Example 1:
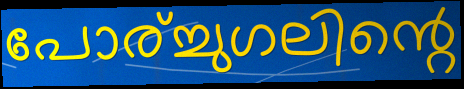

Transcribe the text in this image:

പോര്ച്ചുഗലിന്റെ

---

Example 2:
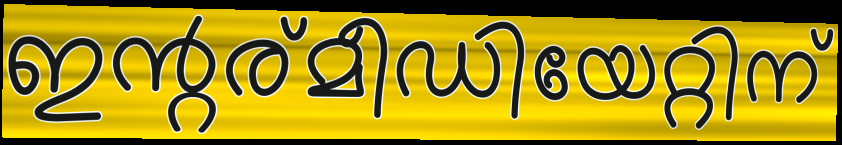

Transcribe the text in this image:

ഇന്റര്മീഡിയേറ്റിന്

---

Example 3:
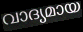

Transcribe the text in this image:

വാദ്യമായ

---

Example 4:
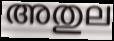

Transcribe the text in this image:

അതുല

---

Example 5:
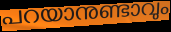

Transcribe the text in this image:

പറയാനുണ്ടാവും